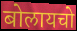
बोलायचो